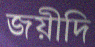
জয়ীদি